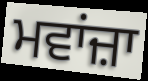
ਮਵਾਂਜ਼ਾ